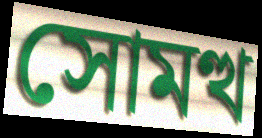
সোমত্থ